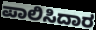
ಪಾಲಿಸಿದಾರ